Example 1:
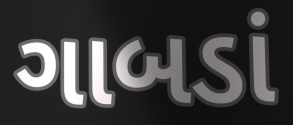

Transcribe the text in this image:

ગાબડાં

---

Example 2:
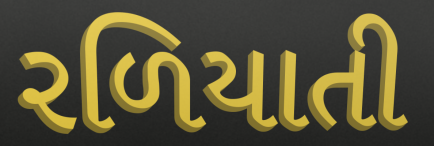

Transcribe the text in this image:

રળિયાતી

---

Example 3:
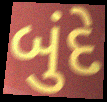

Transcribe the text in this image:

બુંદે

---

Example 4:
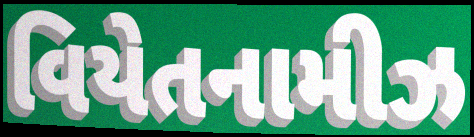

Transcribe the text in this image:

વિયેતનામીઝ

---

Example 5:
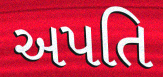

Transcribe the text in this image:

અપતિ